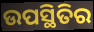
ଉପସ୍ଥିତିର